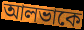
আলভাকে